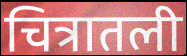
चित्रातली